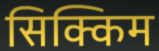
सिक्किम